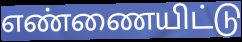
எண்ணையிட்டு